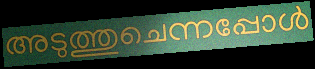
അടുത്തുചെന്നപ്പോൾ